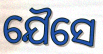
ଯୈସେ